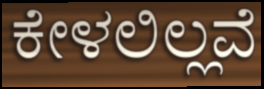
ಕೇಳಲಿಲ್ಲವೆ